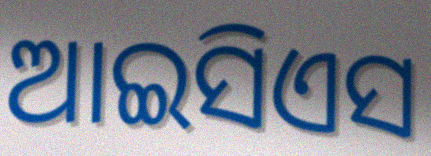
ଆଇସିଏସ